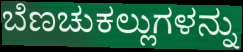
ಬೆಣಚುಕಲ್ಲುಗಳನ್ನು